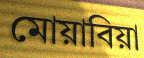
মোয়াবিয়া